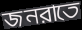
জনরাতে